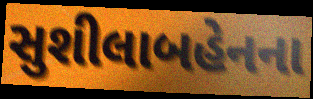
સુશીલાબહેનના